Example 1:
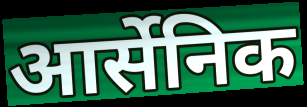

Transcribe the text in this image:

आर्सेनिक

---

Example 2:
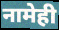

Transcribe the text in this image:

नामेही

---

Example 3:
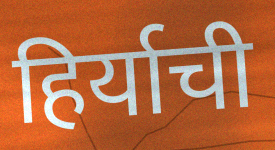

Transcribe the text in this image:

हिर्याची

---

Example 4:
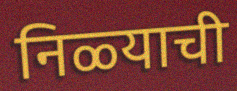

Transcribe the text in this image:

निळ्याची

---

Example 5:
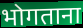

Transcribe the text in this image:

भोगताना